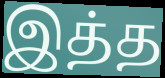
இத்த